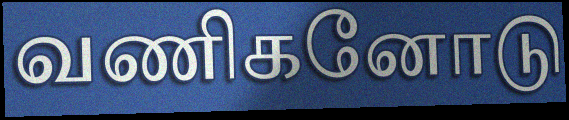
வணிகனோடு